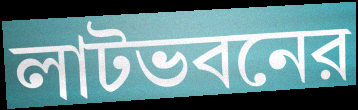
লাটভবনের